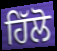
ਹਿੱਲੋ